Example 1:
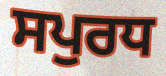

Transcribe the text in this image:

ਸਪੁਰਧ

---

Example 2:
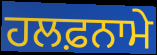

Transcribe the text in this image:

ਹਲਫ਼ਨਾਮੇ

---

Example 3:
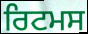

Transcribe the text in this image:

ਰਿਟਮਸ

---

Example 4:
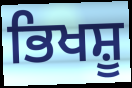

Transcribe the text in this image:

ਭਿਖਸ਼ੂ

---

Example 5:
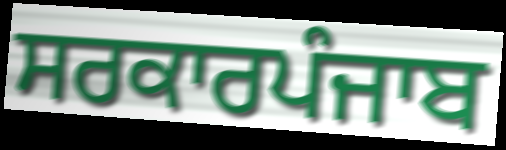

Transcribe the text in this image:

ਸਰਕਾਰਪੰਜਾਬ